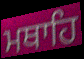
ਮਥਾਹਿ